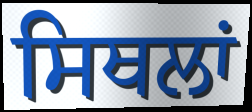
ਸਿਥਲਾਂ